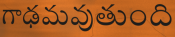
గాఢమవుతుంది